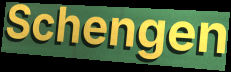
Schengen